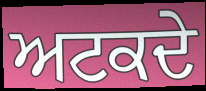
ਅਟਕਦੇ